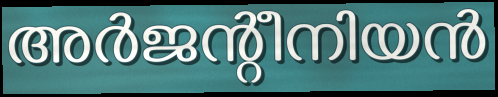
അർജന്റീനിയൻ